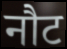
नौट